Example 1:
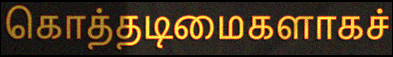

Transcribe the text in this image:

கொத்தடிமைகளாகச்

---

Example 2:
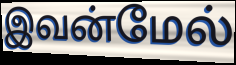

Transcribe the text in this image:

இவன்மேல்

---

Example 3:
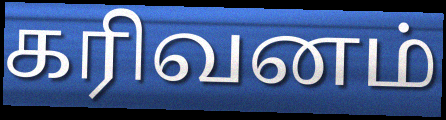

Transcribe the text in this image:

கரிவனம்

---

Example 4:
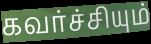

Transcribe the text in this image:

கவர்ச்சியும்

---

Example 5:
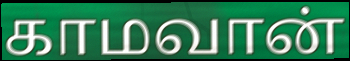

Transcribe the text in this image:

காமவான்